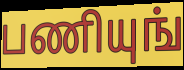
பணியுங்